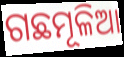
ଗଛମୂଳିଆ